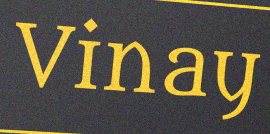
Vinay